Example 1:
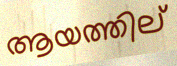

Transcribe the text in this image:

ആയത്തില്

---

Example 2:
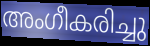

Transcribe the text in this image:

അംഗീകരിച്ചു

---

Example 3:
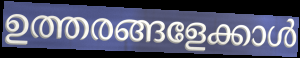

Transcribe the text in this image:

ഉത്തരങ്ങളേക്കാൾ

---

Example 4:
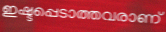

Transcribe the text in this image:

ഇഷ്ടപ്പെടാത്തവരാണ്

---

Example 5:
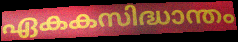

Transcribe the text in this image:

ഏകകസിദ്ധാന്തം